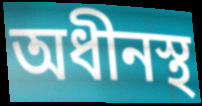
অধীনস্থ